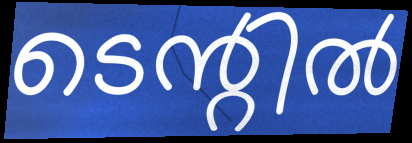
ടെന്റിൽ